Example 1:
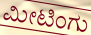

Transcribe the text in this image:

ಮೀಟಿಂಗು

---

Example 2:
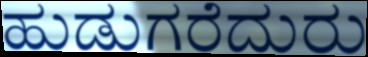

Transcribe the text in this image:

ಹುಡುಗರೆದುರು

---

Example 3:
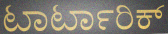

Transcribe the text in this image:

ಟಾರ್ಟಾರಿಕ್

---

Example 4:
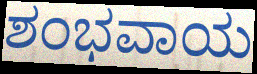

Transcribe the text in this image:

ಶಂಭವಾಯ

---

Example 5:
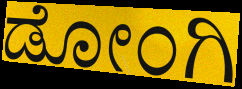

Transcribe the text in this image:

ಡೋಂಗಿ